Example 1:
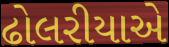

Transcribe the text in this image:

ઢોલરીયાએ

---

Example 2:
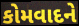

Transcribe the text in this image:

કોમવાદને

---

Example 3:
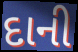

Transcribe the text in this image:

દાની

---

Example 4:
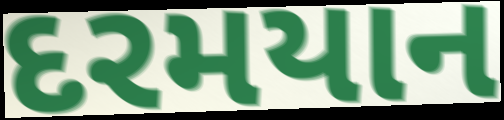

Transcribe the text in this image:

દરમયાન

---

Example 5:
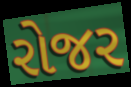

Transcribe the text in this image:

રોજર